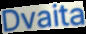
Dvaita